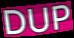
DUP